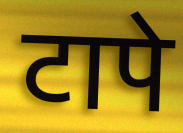
टापे